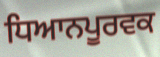
ਧਿਆਨਪੂਰਵਕ